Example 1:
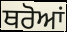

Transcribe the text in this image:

ਥਰੋਆਂ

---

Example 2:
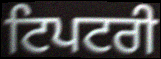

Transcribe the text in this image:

ਟਿਪਟਰੀ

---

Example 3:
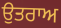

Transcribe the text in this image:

ਉਤਰਾਅ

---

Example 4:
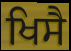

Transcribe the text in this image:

ਖਿਸੈ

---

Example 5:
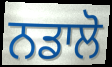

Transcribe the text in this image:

ਨਡਾਲੋ